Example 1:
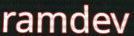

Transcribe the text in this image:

ramdev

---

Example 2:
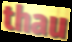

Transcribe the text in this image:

thau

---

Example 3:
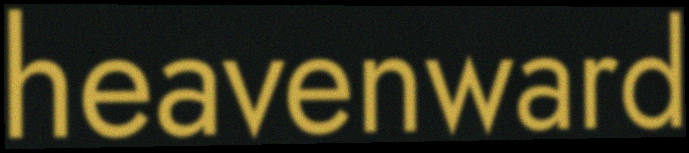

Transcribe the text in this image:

heavenward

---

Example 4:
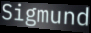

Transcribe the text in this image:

Sigmund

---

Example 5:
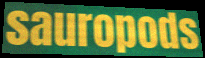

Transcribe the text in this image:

sauropods